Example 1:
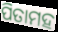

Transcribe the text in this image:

ପିତାମହ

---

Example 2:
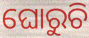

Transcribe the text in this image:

ଘୋରୁଚି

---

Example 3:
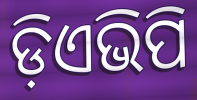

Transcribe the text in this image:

ଡ଼ିଏଭିପି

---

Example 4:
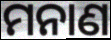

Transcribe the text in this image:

ମନାଣ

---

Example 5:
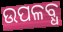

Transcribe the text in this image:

ଉପଳବ୍ଧ